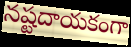
నష్టదాయకంగా